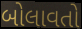
બોલાવતો